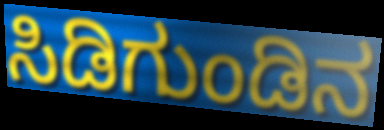
ಸಿಡಿಗುಂಡಿನ